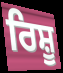
ਰਿਸ਼ੂ